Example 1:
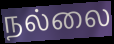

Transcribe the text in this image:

நல்லை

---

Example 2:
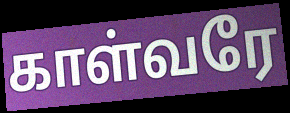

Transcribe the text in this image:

காள்வரே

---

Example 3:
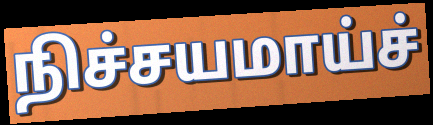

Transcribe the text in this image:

நிச்சயமாய்ச்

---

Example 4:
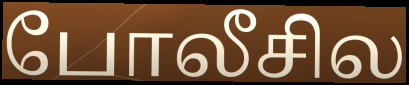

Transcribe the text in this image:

போலீசில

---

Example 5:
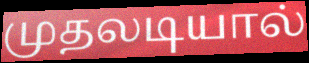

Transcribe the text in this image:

முதலடியால்